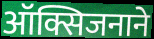
ऑक्सिजनाने